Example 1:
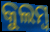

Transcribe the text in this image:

କୁଲମ୍ବ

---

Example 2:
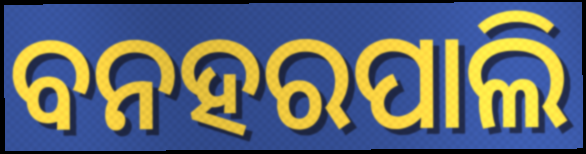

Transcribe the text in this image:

ବନହରପାଲି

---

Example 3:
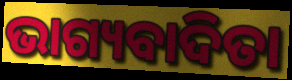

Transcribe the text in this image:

ଭାଗ୍ୟବାଦିତା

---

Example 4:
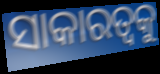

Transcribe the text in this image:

ସାକାରତ୍ଵକୁ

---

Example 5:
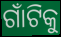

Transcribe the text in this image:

ଗାଁଟିକୁ